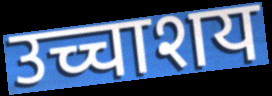
उच्चाशय